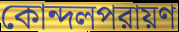
কোন্দলপরায়ণ